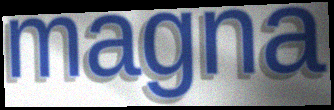
magna